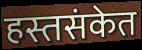
हस्तसंकेत